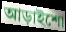
আড়াইশো